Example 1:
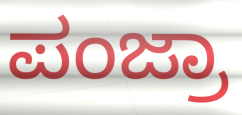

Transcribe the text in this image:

ಪಂಜ್ರಾ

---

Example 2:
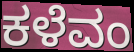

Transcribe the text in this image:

ಕಳೆವಂ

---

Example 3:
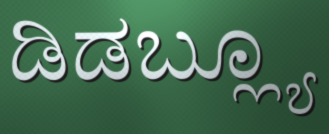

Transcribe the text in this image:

ಡಿಡಬ್ಲ್ಯೂ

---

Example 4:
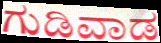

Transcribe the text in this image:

ಗುಡಿವಾಡ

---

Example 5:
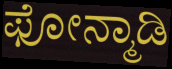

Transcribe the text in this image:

ಫೋನ್ಮಾಡಿ